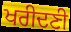
ਖਰੀਦਣੀ